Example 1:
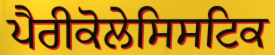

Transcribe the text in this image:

ਪੈਰੀਕੋਲੇਸਿਸਟਿਕ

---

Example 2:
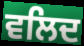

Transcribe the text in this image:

ਵਲਿਦ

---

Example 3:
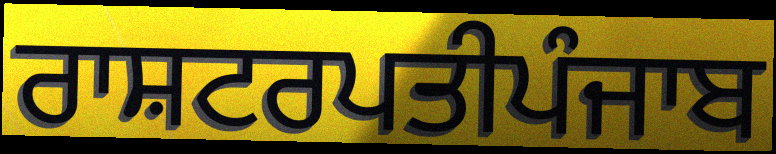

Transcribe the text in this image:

ਰਾਸ਼ਟਰਪਤੀਪੰਜਾਬ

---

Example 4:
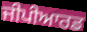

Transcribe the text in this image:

ਜੀਪੀਆਰਡ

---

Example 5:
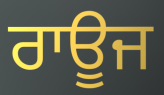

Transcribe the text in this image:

ਰਾਊਜ